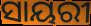
ସାୟରୀ